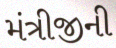
મંત્રીજીની